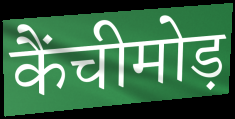
कैंचीमोड़